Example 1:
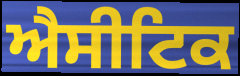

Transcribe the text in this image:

ਐਸੀਟਿਕ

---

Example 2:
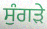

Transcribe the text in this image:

ਸੁੰਗੜੇ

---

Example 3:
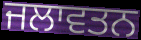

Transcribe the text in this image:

ਜਲਾਵਤਨ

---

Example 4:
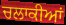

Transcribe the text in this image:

ਚਲਾਕੀਆਂ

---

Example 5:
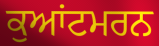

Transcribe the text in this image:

ਕੁਆਂਟਮਰਨ